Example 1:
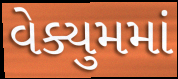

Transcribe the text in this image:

વેક્યુમમાં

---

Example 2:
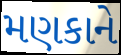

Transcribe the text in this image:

મણકાને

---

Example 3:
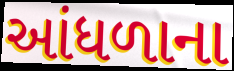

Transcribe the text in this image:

આંધળાના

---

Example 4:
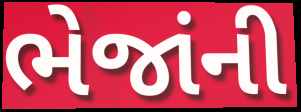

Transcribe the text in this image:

ભેજાંની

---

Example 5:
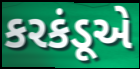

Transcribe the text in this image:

કરકંડૂએ